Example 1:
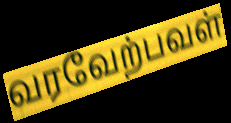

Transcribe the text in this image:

வரவேற்பவள்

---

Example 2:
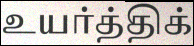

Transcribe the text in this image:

உயர்த்திக்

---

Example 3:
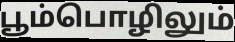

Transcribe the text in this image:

பூம்பொழிலும்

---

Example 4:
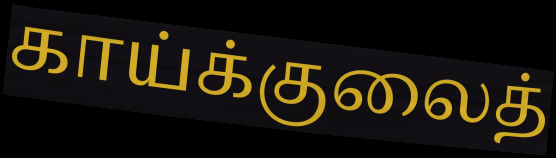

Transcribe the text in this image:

காய்க்குலைத்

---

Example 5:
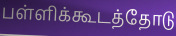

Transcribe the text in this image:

பள்ளிக்கூடத்தோடு